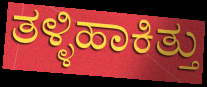
ತಳ್ಳಿಹಾಕಿತ್ತು